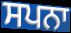
ਸਪਨਾ